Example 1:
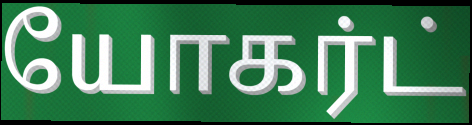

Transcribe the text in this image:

யோகர்ட்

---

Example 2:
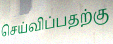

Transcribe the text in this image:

செய்விப்பதற்கு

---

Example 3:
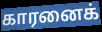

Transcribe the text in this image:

காரனைக்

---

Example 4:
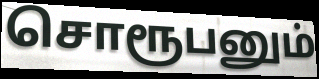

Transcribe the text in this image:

சொரூபனும்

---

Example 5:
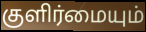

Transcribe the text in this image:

குளிர்மையும்